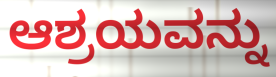
ಆಶ್ರಯವನ್ನು